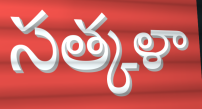
సత్కళా